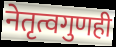
नेतृत्वगुणही